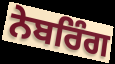
ਨੇਬਰਿੰਗ